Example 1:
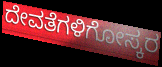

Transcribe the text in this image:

ದೇವತೆಗಳಿಗೋಸ್ಕರ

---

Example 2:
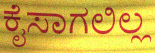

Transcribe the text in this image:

ಕೈಸಾಗಲಿಲ್ಲ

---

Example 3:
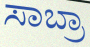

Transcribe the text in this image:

ಸಾಬ್ರಾ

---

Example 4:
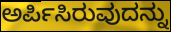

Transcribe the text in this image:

ಅರ್ಪಿಸಿರುವುದನ್ನು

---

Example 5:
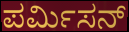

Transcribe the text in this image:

ಪರ್ಮಿಸನ್